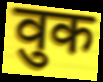
वुक